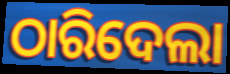
ଠାରିଦେଲା